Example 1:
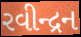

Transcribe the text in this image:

રવીન્દ્રન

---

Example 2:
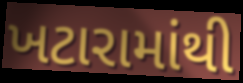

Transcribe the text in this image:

ખટારામાંથી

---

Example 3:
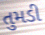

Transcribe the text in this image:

તુમડી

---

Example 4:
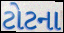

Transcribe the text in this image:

ટોટના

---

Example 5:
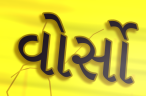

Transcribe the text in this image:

વોર્સો